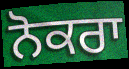
ਨੋਕਰਾ